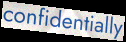
confidentially